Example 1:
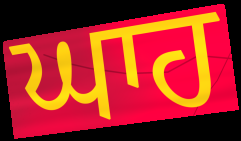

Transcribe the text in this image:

ਘਾਹ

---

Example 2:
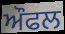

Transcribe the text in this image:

ਔਫਲ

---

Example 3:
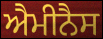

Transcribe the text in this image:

ਐਮੀਨੈਸ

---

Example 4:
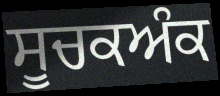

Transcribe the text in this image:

ਸੂਚਕਅੰਕ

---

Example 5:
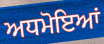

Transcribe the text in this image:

ਅਧਮੋਇਆਂ